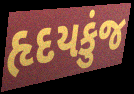
હૃદયકુંજ